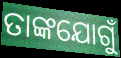
ତାଙ୍କଯୋଗୁଁ